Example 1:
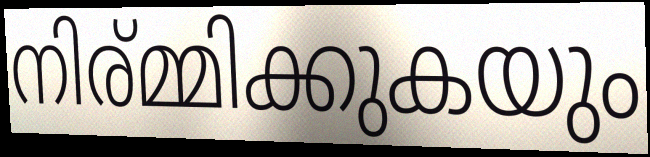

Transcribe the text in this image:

നിര്മ്മിക്കുകയും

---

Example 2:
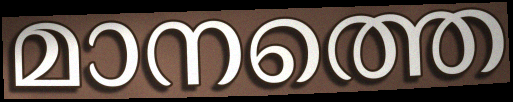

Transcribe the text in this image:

മാനത്തെ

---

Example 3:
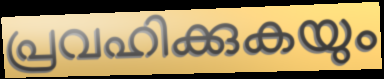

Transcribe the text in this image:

പ്രവഹിക്കുകയും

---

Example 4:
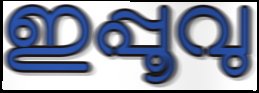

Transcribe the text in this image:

ഇപ്പൂവു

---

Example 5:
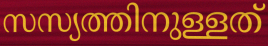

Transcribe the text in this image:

സസ്യത്തിനുള്ളത്